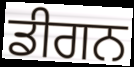
ਡੀਗਨ